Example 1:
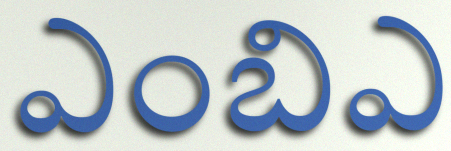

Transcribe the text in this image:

ఎంబిఎ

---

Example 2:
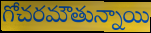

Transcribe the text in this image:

గోచరమౌతున్నాయి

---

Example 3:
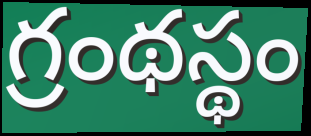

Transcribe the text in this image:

గ్రంథస్థం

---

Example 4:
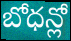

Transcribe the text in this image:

బోధన్లో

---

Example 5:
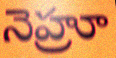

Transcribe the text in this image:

నెహ్రూ